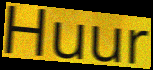
Huur